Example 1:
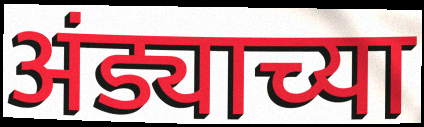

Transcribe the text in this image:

अंड्याच्या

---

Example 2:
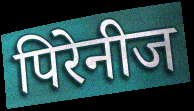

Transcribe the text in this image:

पिरेनीज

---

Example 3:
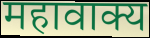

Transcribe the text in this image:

महावाक्य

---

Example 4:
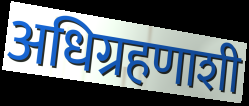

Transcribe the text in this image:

अधिग्रहणाशी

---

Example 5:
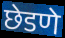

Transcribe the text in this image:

छेडणे